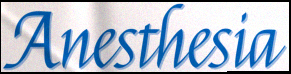
Anesthesia